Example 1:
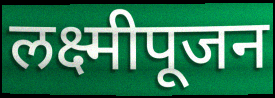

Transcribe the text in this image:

लक्ष्मीपूजन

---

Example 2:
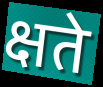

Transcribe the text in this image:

क्षते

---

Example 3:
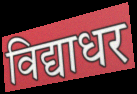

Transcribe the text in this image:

विद्याधर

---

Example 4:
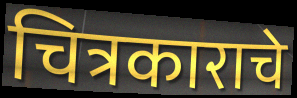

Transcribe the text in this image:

चित्रकाराचे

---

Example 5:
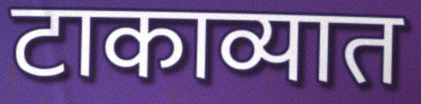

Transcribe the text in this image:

टाकाव्यात